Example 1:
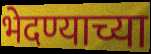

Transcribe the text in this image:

भेदण्याच्या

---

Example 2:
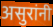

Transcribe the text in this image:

असुरांनी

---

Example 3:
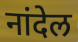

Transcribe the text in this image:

नांदेल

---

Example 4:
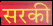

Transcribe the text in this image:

सरकी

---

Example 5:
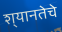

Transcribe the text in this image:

श्यानतेचे